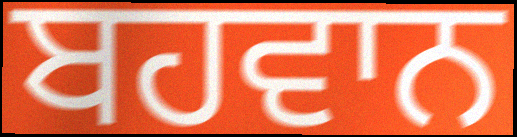
ਬਹਵਾਨ